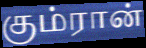
கும்ரான்